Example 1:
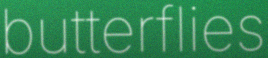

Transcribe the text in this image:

butterflies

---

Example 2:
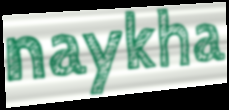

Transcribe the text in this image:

naykha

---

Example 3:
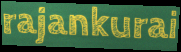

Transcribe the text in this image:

rajankurai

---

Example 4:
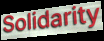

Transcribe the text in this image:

Solidarity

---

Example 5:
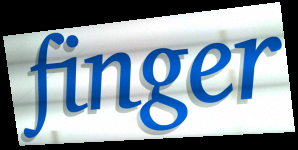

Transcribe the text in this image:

finger